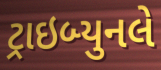
ટ્રાઇબ્યુનલે